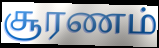
சூரணம்